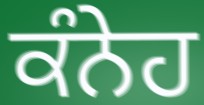
ਕੰਨੇਹ